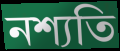
নশ্যতি